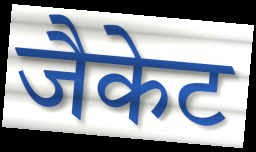
जैकेट